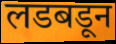
लडबडून